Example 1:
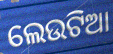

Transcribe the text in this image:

ଲେଉଟିଆ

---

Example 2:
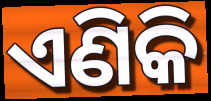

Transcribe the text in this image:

ଏଣିକି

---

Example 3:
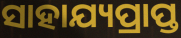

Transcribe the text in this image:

ସାହାଯ୍ୟପ୍ରାପ୍ତ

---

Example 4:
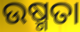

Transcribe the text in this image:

ଉଷ୍ମତା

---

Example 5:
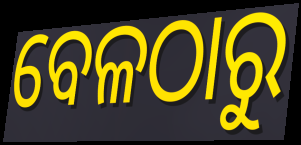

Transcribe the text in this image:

ବେଳଠାରୁ